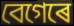
বেগেৰে